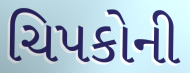
ચિપકોની